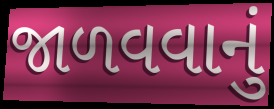
જાળવવાનું